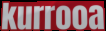
kurrooa